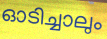
ഓടിച്ചാലും